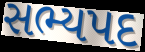
સભ્યપદ